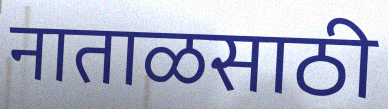
नाताळसाठी